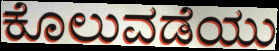
ಕೊಲುವಡೆಯು